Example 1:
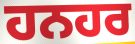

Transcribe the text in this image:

ਹਨਹਰ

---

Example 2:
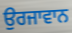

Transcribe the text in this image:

ਉਰਜਾਵਾਨ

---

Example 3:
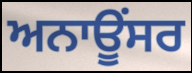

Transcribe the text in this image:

ਅਨਾਊਂਸਰ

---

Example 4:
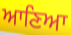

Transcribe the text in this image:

ਆਣਿਆ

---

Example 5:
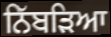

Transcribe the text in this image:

ਨਿੱਬੜਿਆ